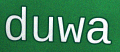
duwa